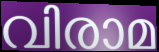
വിരാമ